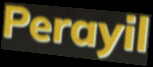
Perayil